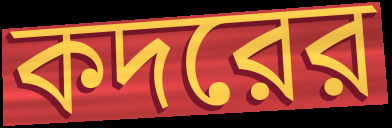
কদরের